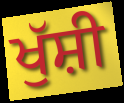
ਖੁੱਸ਼ੀ